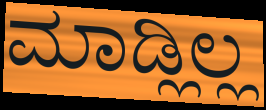
ಮಾಡ್ಲಿಲ್ಲ